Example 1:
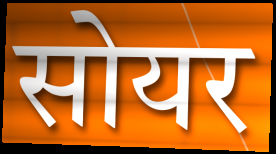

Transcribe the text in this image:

सोयर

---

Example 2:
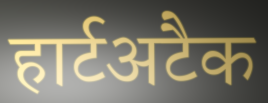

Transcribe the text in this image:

हार्टअटैक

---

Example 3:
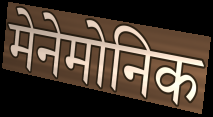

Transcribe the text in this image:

मेनेमोनिक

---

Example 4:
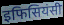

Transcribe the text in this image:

इफिसियंसी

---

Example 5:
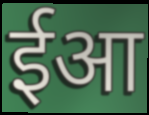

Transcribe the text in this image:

ईआ